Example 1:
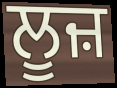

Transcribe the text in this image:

ਲੂਜ਼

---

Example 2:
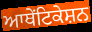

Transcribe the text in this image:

ਆਥੇਂਟਿਕੇਸ਼ਨ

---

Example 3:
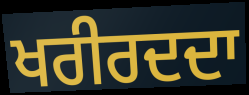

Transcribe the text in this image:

ਖਰੀਰਦਦਾ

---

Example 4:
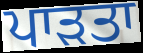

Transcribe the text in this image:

ਪਾੜਤਾ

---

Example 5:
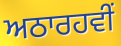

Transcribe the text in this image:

ਅਠਾਰਹਵੀਂ